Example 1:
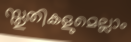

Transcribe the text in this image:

സ്തുതികളുമെല്ലാം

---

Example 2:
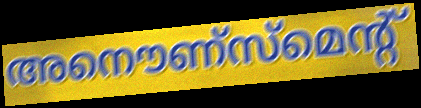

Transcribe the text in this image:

അനൌണ്സ്മെന്റ്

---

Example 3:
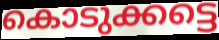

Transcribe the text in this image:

കൊടുക്കട്ടെ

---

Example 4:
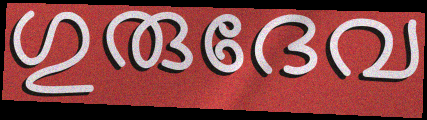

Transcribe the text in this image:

ഗുരുദേവ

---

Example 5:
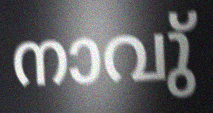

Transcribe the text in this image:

നാവു്